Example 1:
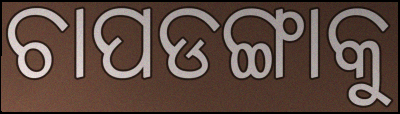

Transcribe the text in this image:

ଚାପଡଙ୍ଗାକୁ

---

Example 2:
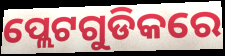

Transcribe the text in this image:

ପ୍ଲେଟଗୁଡିକରେ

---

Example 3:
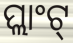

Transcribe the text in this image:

ପ୍ଲାଂଟ୍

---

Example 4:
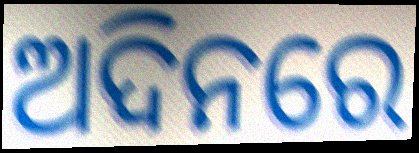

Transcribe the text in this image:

ଅଦିନରେ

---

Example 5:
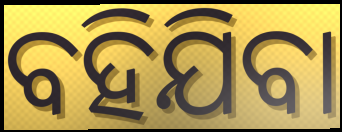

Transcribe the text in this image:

ବହିଯିବା